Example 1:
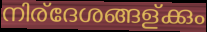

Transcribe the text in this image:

നിര്ദേശങ്ങള്ക്കും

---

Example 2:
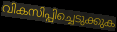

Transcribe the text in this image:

വികസിപ്പിച്ചെടുക്കുക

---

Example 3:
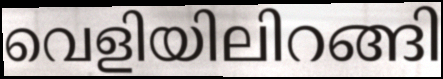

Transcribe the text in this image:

വെളിയിലിറങ്ങി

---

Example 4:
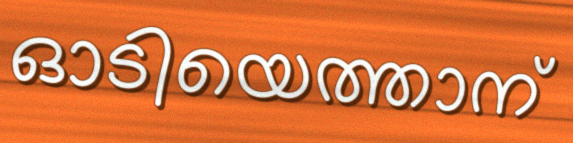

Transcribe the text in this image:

ഓടിയെത്താന്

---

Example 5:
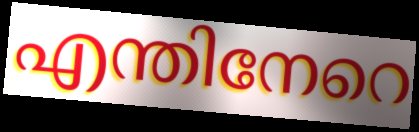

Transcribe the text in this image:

എന്തിനേറെ